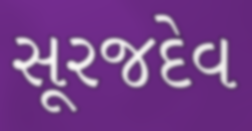
સૂરજદેવ